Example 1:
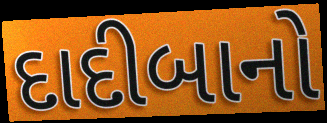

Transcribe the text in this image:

દાદીબાનો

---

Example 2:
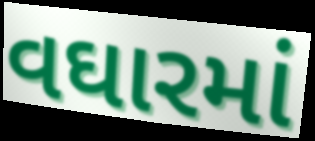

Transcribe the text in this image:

વઘારમાં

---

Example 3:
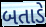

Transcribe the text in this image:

બતાડે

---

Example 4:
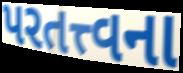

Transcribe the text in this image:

પરતત્ત્વના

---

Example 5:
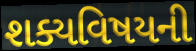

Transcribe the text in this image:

શક્યવિષયની